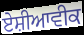
ਏਸ਼ੀਆਵੀਕ